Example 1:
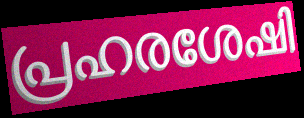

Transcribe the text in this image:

പ്രഹരശേഷി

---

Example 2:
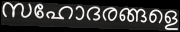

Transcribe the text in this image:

സഹോദരങ്ങളെ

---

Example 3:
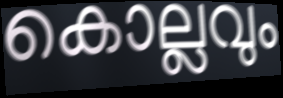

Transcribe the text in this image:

കൊല്ലവും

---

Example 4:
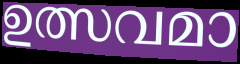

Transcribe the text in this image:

ഉത്സവമാ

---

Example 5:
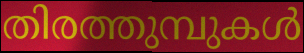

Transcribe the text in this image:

തിരത്തുമ്പുകൾ